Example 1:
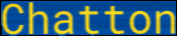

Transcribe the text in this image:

Chatton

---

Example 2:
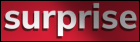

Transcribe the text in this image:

surprise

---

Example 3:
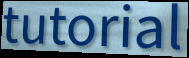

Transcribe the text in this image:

tutorial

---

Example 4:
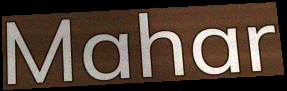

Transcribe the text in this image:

Mahar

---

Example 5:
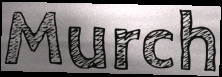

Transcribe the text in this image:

Murch